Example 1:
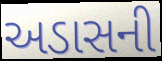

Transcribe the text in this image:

અડાસની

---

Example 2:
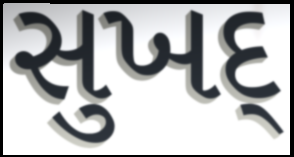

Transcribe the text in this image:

સુખદ્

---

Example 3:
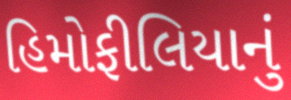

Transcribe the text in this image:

હિમોફીલિયાનું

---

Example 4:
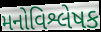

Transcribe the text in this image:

મનોવિશ્લેષક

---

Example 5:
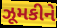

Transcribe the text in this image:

ઝૂમકીને